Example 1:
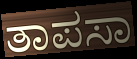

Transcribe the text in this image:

ತಾಪಸಾ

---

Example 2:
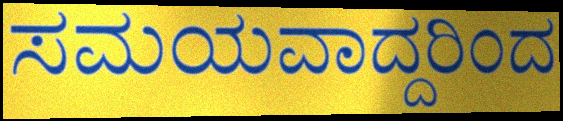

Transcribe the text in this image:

ಸಮಯವಾದ್ದರಿಂದ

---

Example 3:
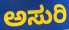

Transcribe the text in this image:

ಅಸುರಿ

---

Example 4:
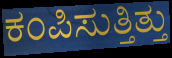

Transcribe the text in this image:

ಕಂಪಿಸುತ್ತಿತ್ತು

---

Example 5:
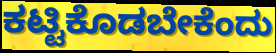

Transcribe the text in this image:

ಕಟ್ಟಿಕೊಡಬೇಕೆಂದು